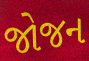
જોજન